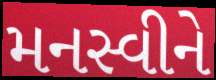
મનસ્વીને